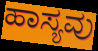
ಹಾಸ್ಯವು